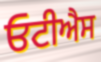
ਓਟੀਐਸ